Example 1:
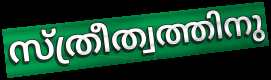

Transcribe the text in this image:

സ്ത്രീത്വത്തിനു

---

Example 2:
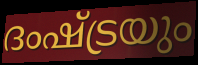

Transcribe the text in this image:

ദംഷ്ട്രയും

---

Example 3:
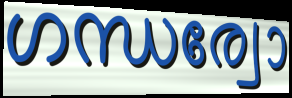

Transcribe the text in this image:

ഗന്ധര്വോ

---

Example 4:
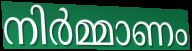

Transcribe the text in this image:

നിർമ്മാണം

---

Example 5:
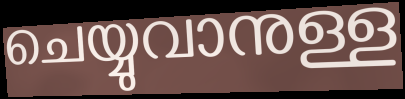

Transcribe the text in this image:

ചെയ്യുവാനുള്ള